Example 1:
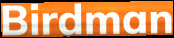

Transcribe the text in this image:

Birdman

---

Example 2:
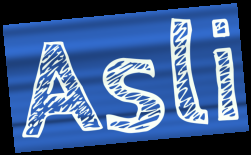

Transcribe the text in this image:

Asli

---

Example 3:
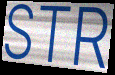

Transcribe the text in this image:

STR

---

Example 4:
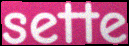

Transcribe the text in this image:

sette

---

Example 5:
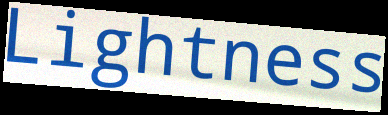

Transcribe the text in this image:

Lightness